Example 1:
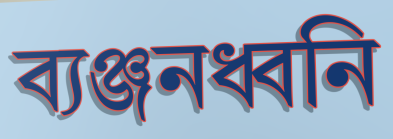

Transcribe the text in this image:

ব্যঞ্জনধ্বনি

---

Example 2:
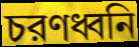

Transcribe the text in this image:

চরণধ্বনি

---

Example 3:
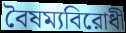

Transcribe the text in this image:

বৈষম্যবিরোধী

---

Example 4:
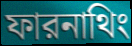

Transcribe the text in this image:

ফারনাথিং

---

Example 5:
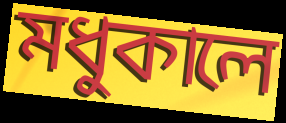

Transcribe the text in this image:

মধুকালে